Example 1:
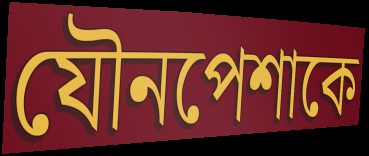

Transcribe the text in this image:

যৌনপেশাকে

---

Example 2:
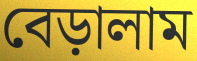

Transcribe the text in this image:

বেড়ালাম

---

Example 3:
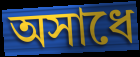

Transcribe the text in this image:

অসাধে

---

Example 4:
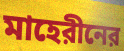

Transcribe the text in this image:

মাহেরীনের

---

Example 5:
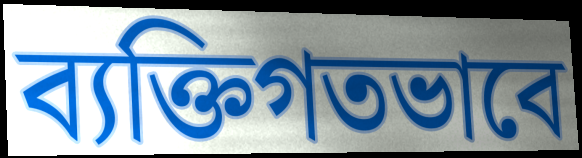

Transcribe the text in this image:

ব্যক্তিগতভাবে